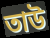
তাউ